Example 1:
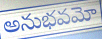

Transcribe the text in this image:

అనుభవమో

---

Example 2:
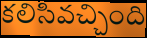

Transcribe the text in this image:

కలిసివచ్చింది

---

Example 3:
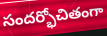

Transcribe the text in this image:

సందర్భోచితంగా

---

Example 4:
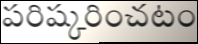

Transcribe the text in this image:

పరిష్కరించటం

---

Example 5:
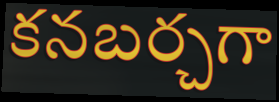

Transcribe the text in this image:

కనబర్చగా